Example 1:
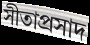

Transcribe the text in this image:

সীতাপ্রসাদ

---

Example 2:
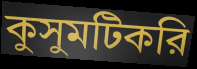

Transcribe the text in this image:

কুসুমটিকরি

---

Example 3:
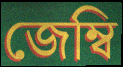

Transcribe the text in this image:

জেম্বি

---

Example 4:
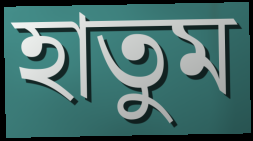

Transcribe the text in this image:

হাতুম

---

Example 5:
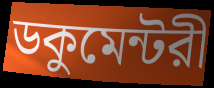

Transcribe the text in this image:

ডকুমেন্টরী